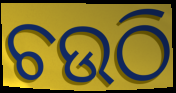
ଚଉଠି